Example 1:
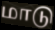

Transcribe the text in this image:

மாடு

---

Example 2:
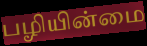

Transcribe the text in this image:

பழியின்மை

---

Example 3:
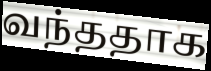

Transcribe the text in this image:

வந்ததாக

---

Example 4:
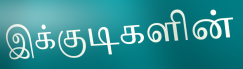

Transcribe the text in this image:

இக்குடிகளின்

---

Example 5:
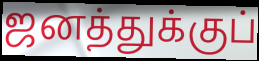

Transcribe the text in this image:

ஜனத்துக்குப்